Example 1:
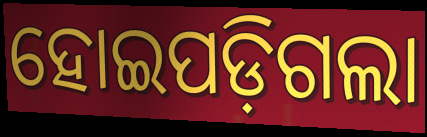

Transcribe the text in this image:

ହୋଇପଡ଼ିଗଲା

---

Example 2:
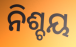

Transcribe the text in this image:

ନିଶ୍ଚୟ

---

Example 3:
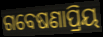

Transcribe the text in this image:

ଗବେଷଣାପ୍ରିୟ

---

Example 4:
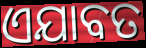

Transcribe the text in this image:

ଏଯାବତ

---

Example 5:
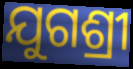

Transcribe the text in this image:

ଯୁଗଶ୍ରୀ